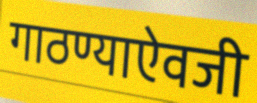
गाठण्याऐवजी